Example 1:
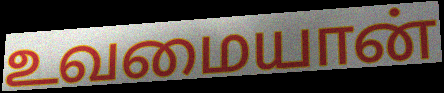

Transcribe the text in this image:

உவமையான்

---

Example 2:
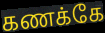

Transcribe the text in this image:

கணக்கே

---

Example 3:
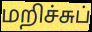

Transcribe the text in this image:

மறிச்சுப்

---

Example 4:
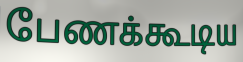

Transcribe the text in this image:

பேணக்கூடிய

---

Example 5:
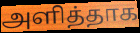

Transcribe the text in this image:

அளித்தாக